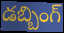
డబ్బింగ్